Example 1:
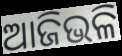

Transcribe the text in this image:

ଆଜିଭଳି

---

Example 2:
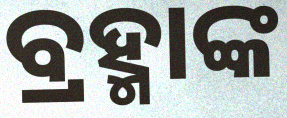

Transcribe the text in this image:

ବ୍ରହ୍ମାଙ୍କ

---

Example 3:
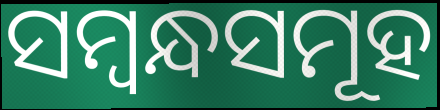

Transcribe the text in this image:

ସମ୍ୱନ୍ଧସମୂହ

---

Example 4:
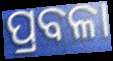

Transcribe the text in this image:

ପ୍ରବଳା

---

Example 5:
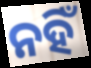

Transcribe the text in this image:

ନହିଁ